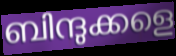
ബിന്ദുക്കളെ